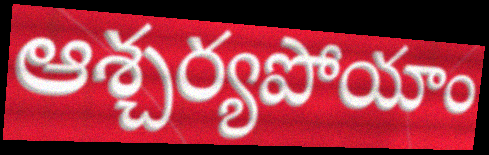
ఆశ్చర్యపోయాం